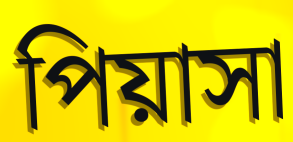
পিয়াসা